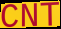
CNT